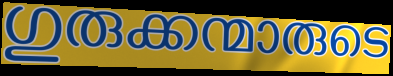
ഗുരുക്കന്മാരുടെ